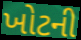
ખોટની